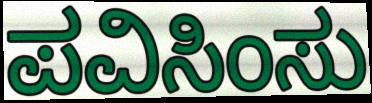
ಪವಿಸಿಂಸು